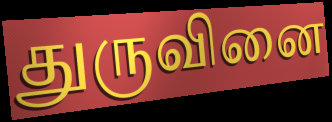
துருவினை